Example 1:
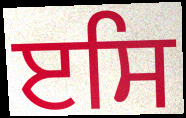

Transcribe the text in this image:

ੲਸਿ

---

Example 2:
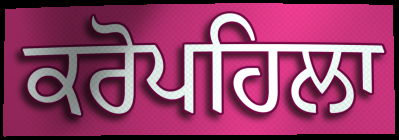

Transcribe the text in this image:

ਕਰੋਪਹਿਲਾ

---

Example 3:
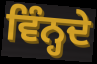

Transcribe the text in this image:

ਵਿੰਨ੍ਹਦੇ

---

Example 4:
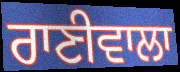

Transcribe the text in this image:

ਰਾਣੀਵਾਲਾ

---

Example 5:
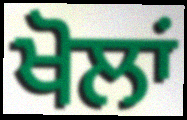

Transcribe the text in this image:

ਖੋਲਾਂ